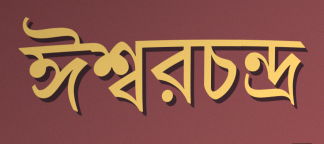
ঈশ্বরচন্দ্র